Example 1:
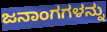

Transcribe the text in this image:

ಜನಾಂಗಗಳನ್ನು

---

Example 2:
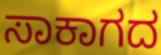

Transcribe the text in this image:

ಸಾಕಾಗದ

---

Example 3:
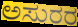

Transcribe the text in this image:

ಅಸುರರ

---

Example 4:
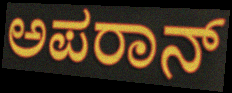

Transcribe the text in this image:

ಅಪರಾನ್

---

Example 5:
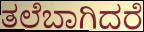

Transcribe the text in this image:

ತಲೆಬಾಗಿದರೆ